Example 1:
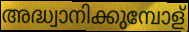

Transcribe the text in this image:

അദ്ധ്വാനിക്കുമ്പോള്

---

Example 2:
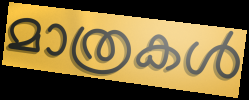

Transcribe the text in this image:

മാത്രകൾ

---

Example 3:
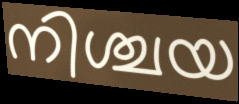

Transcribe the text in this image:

നിശ്ചയ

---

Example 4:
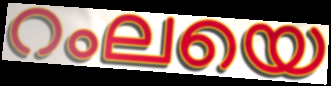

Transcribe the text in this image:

റംലയെ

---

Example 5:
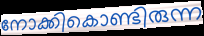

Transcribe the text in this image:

നോക്കികൊണ്ടിരുന്ന